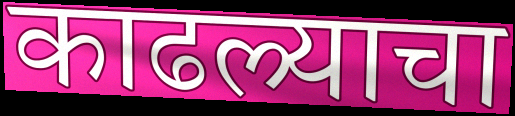
काढल्याचा